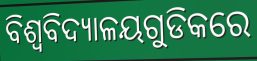
ବିଶ୍ଵବିଦ୍ୟାଳୟଗୁଡିକରେ